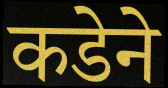
कडेने